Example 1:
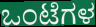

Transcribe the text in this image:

ಒಂಟೆಗಳ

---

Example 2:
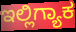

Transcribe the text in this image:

ಇಲ್ಲಿಗ್ಯಾಕ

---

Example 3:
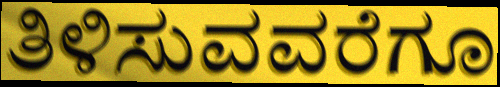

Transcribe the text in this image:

ತಿಳಿಸುವವರೆಗೂ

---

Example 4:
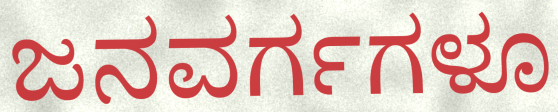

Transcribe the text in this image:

ಜನವರ್ಗಗಳೂ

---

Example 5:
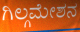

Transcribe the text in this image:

ಗಿಲ್ಗಮೇಶನ